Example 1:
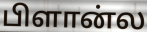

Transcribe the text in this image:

பிளான்ல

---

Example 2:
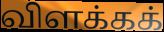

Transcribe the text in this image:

விளக்கக்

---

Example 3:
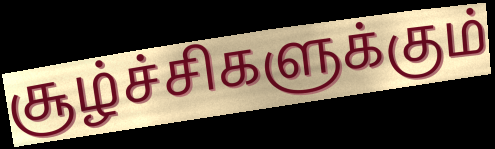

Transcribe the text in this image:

சூழ்ச்சிகளுக்கும்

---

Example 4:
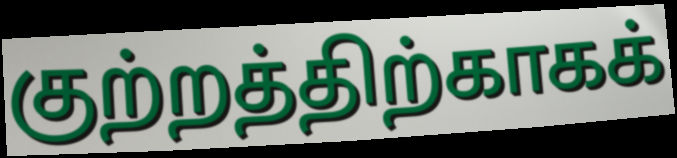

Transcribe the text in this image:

குற்றத்திற்காகக்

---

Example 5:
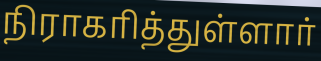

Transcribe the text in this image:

நிராகரித்துள்ளார்